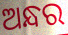
ଅନ୍ଧର